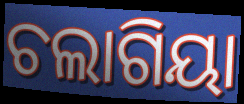
ଚଲାଗିୟା